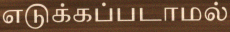
எடுக்கப்படாமல்